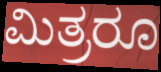
ಮಿತ್ರರೂ